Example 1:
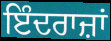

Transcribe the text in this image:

ਇੰਦਰਾਜ਼ਾਂ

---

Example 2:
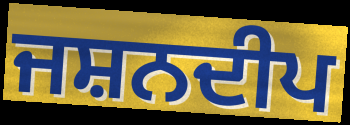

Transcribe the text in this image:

ਜਸ਼ਨਦੀਪ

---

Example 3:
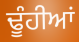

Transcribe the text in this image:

ਢੂੰਹੀਆਂ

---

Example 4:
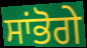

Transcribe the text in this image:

ਸਾਂਭੋਗੇ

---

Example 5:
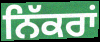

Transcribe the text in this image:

ਨਿੱਕਰਾਂ